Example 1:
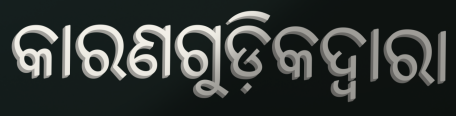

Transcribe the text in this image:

କାରଣଗୁଡ଼ିକଦ୍ବାରା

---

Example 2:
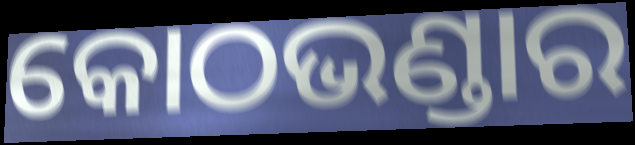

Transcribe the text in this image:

କୋଠଭଣ୍ଡାର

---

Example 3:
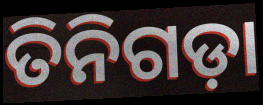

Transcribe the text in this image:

ତିନିଗଡ଼ା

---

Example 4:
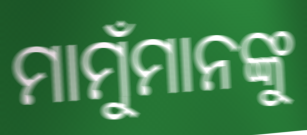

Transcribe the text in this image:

ମାମୁଁମାନଙ୍କୁ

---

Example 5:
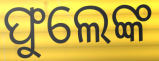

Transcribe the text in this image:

ଫୁଲେଙ୍କ